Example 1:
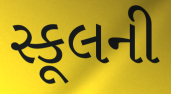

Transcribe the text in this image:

સ્કૂલની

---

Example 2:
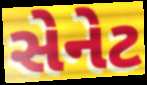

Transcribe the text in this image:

સેનેટ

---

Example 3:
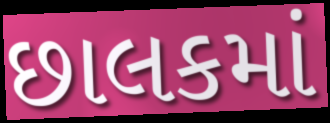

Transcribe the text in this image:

છાલકમાં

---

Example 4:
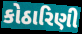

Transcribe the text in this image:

કોઠારિણી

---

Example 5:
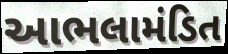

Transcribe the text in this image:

આભલામંડિત